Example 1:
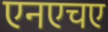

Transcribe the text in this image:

एनएचए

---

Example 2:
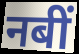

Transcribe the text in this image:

नबीं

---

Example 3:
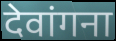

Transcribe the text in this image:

देवांगना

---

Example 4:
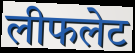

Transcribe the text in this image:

लीफलेट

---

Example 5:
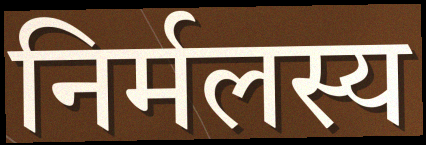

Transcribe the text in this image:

निर्मलस्य